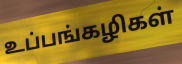
உப்பங்கழிகள்